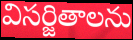
విసర్జితాలను